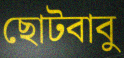
ছোটবাবু